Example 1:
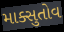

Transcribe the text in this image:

માક્સુતોવ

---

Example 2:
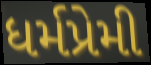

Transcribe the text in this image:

ધર્મપ્રેમી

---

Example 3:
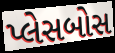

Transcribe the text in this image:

પ્લેસબોસ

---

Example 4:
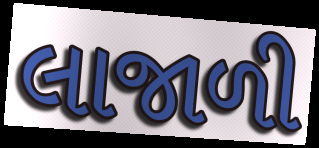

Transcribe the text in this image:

લાજાળી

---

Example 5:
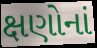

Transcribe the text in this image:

ક્ષણોનાં